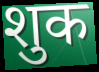
शुक